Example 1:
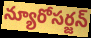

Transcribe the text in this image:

న్యూరోసర్జన్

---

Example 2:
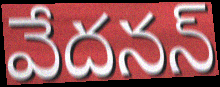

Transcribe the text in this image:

వేదనన్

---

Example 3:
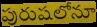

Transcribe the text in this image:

పురుషలోనూ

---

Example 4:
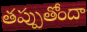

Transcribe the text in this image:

తప్పుతోందా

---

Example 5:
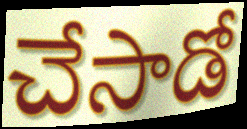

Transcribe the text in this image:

చేసాడో